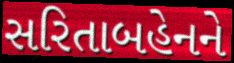
સરિતાબહેનને